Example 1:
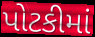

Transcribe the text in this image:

પોટકીમાં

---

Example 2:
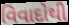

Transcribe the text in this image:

વિવાદોથી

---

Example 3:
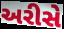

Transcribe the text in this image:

અરીસે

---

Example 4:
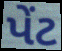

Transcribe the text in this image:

પેંટ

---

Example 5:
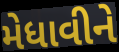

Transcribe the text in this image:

મેધાવીને